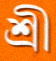
শ্ৰী